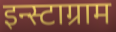
इन्स्टाग्राम